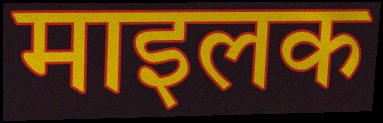
माइलक